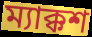
ম্যাক্কশ